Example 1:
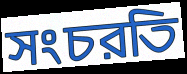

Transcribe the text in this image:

সংচরতি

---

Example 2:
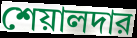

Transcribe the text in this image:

শেয়ালদার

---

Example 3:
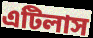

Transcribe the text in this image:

এটিলাস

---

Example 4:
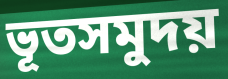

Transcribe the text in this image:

ভূতসমুদয়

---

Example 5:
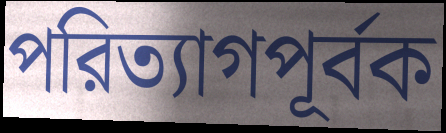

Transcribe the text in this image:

পরিত্যাগপূর্বক